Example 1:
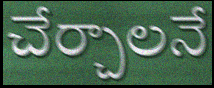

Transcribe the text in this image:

చేర్చాలనే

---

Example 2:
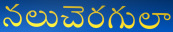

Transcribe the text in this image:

నలుచెరగులా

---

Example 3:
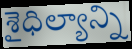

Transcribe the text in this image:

శైధిల్యాన్ని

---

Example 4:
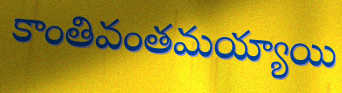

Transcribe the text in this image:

కాంతివంతమయ్యాయి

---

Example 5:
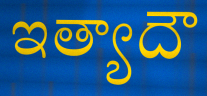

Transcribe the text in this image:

ఇత్యాదౌ